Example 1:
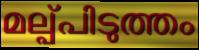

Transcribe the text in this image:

മല്പ്പിടുത്തം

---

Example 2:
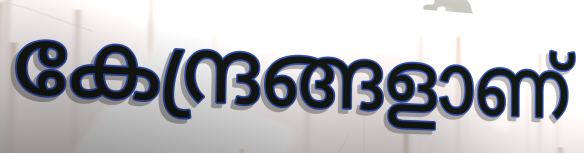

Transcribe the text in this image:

കേന്ദ്രങ്ങളാണ്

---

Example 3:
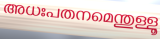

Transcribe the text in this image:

അധഃപതനമെന്തുള്ളൂ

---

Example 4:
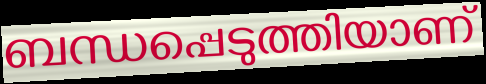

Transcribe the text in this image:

ബന്ധപ്പെടുത്തിയാണ്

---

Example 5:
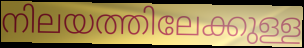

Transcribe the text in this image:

നിലയത്തിലേക്കുള്ള